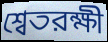
শ্বেতরক্ষী